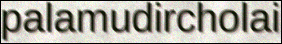
palamudircholai